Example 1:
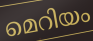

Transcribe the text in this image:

മെറിയം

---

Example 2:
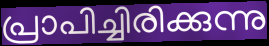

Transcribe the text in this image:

പ്രാപിച്ചിരിക്കുന്നു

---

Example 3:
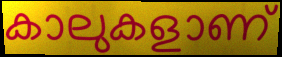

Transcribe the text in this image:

കാലുകളാണ്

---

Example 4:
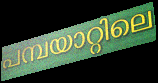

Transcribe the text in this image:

പമ്പയാറ്റിലെ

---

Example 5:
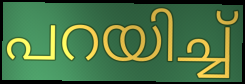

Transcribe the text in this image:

പറയിച്ച്